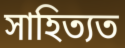
সাহিত্যত